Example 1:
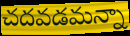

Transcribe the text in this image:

చదవడమన్నా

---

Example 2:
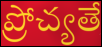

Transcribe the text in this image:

ప్రోచ్యతే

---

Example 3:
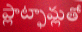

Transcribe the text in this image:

ప్లాట్ఫామ్లతో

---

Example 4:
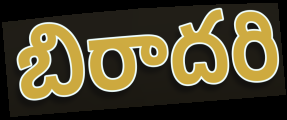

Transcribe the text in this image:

బిరాదరి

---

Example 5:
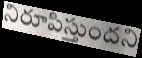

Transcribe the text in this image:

నిరూపిస్తుందని